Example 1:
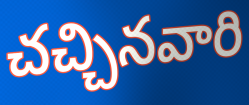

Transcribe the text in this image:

చచ్చినవారి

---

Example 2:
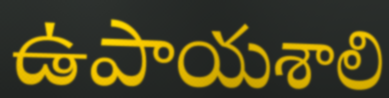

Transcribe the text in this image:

ఉపాయశాలి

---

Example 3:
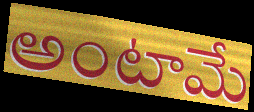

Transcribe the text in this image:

అంటామే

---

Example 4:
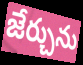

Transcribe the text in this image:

జేర్చును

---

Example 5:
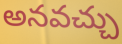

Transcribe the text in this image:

అనవచ్చు